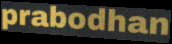
prabodhan